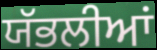
ਯੱਭਲੀਆਂ